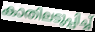
കാതിലടുപ്പിച്ച്